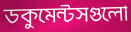
ডকুমেন্টসগুলো